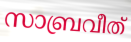
സാബ്രവീത്